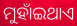
ମୁହାଁଇଥାଏ